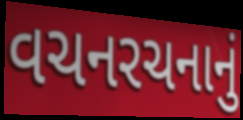
વચનરચનાનું